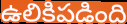
ఉలికిపడింది